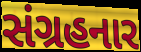
સંગ્રહનાર